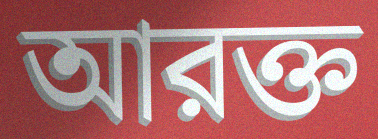
আরক্ত